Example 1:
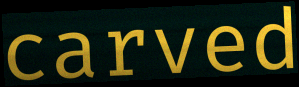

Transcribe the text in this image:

carved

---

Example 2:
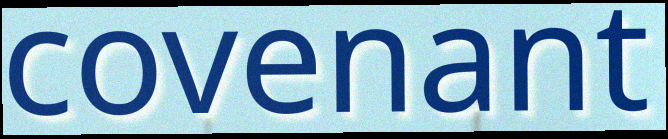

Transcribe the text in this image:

covenant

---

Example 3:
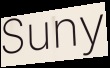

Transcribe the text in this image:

Suny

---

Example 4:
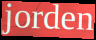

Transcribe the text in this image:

jorden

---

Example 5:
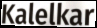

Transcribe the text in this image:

Kalelkar